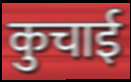
कुचाई